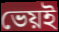
ভেয়ই